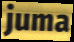
juma